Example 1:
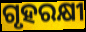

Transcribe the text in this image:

ଗୃହରକ୍ଷୀ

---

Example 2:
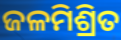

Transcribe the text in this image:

ଜଳମିଶ୍ରିତ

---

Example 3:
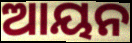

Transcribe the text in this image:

ଆୟନ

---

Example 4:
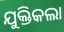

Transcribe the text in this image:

ଯୁକ୍ତିକଲା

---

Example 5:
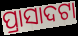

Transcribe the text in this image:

ପ୍ରାସାଦଟା